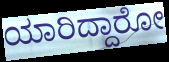
ಯಾರಿದ್ದಾರೋ